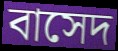
বাসেদ